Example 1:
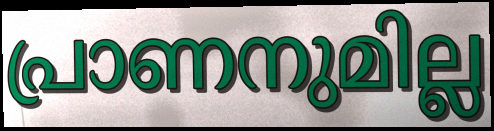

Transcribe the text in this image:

പ്രാണനുമില്ല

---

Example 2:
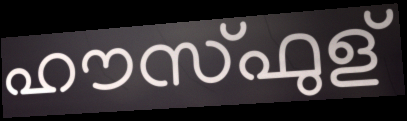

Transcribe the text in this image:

ഹൗസ്ഫുള്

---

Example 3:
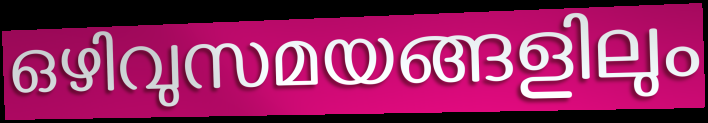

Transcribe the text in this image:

ഒഴിവുസമയങ്ങളിലും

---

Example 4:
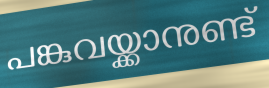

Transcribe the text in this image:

പങ്കുവയ്ക്കാനുണ്ട്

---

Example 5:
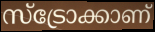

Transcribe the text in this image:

സ്ട്രോക്കാണ്